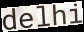
delhi